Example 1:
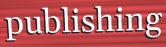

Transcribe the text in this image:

publishing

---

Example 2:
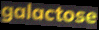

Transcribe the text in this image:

galactose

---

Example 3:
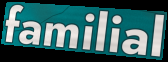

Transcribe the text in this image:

familial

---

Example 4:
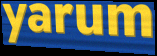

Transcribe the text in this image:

yarum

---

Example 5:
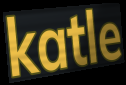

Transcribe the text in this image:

katle